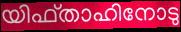
യിഫ്താഹിനോടു